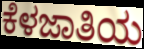
ಕೆಳಜಾತಿಯ